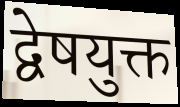
द्वेषयुक्त